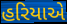
હરિયાએ